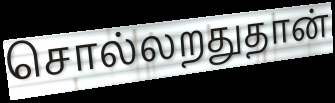
சொல்லறதுதான்